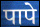
पापे